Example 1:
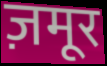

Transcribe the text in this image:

ज़मूर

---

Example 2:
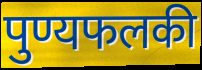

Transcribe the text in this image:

पुण्यफलकी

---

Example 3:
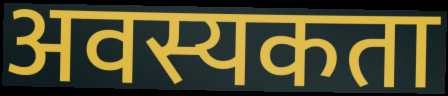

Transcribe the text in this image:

अवस्यकता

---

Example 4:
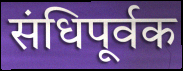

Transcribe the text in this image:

संधिपूर्वक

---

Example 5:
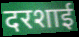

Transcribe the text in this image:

दरशाई